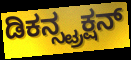
ಡಿಕನ್ಸ್ಟ್ರಕ್ಷನ್